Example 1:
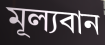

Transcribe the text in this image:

মূল্যবান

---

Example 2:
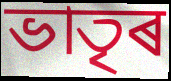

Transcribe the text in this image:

ভাতৃৰ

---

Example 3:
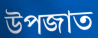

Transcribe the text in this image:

উপজাত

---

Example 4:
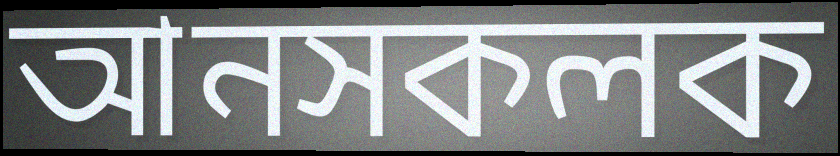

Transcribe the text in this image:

আনসকলক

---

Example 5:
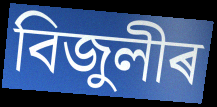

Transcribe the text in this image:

বিজুলীৰ